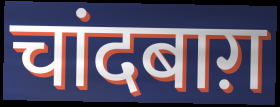
चांदबाग़